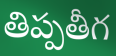
తిప్పతీగ